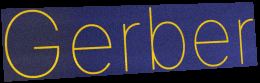
Gerber